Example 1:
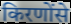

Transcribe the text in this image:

किरणोंसे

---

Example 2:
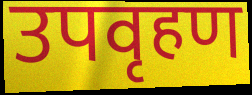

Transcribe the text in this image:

उपवृहण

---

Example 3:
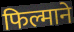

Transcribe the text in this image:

फिल्माने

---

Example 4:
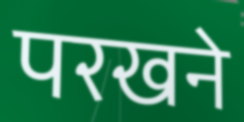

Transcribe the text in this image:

परखने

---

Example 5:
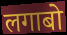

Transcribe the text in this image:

लगाबो